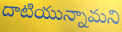
దాటియున్నామని